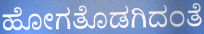
ಹೋಗತೊಡಗಿದಂತೆ